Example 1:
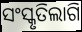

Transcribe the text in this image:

ସଂସ୍କୃତିଲାଗି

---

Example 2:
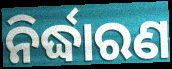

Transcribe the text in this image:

ନିର୍ଦ୍ଧାରଣ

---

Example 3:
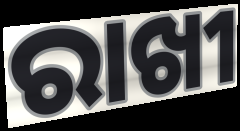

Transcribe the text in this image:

ରାଖୀ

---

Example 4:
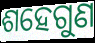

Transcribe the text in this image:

ଶହେଗୁଣ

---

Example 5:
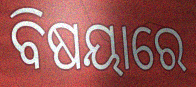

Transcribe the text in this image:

ବିଷୟାରେ